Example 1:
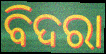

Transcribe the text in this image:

ବିଦରା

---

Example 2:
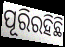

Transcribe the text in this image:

ପୂରିରହିଛି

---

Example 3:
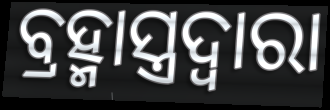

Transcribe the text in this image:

ବ୍ରହ୍ମାସ୍ତ୍ରଦ୍ୱାରା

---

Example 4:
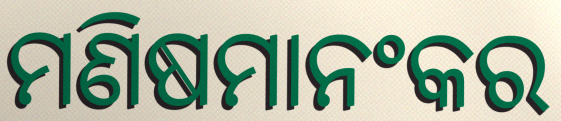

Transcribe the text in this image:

ମଣିଷମାନଂକର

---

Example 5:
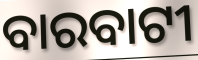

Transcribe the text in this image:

ବାରବାଟୀ